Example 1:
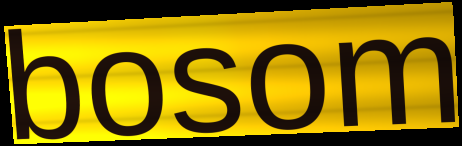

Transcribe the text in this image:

bosom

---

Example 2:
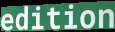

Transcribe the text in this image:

edition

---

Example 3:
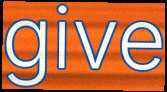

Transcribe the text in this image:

give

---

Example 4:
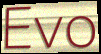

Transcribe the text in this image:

Evo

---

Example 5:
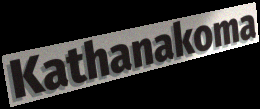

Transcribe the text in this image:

Kathanakoma